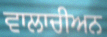
ਵਾਲਾਚੀਅਨ